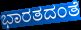
ಭಾರತದಂತೆ